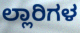
ಲ್ಲಾರಿಗಳ